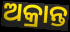
ଅକ୍ରାନ୍ତ